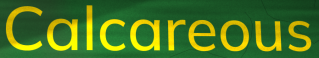
Calcareous